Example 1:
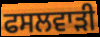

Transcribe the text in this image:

ਫਸਲਵਾੜੀ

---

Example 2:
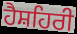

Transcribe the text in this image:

ਹੈਸ਼ਹਿਰੀ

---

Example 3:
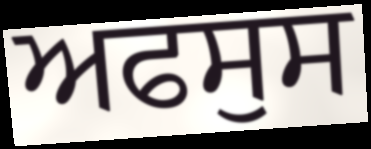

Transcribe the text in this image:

ਅਫਸੁਸ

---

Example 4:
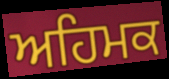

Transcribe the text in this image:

ਅਹਿਮਕ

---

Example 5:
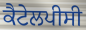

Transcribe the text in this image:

ਕੈਟੇਲਪੀਸੀ